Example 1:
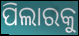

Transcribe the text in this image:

ପିଲାରକୁ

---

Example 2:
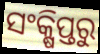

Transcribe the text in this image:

ସଂକ୍ଷିପ୍ତରୁ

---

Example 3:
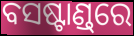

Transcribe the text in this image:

ବସଷ୍ଟାଣ୍ଡ୍‌ରେ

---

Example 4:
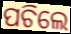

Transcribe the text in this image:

ପଚିଲେ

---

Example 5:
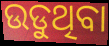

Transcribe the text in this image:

ଉଡୁଥିବା